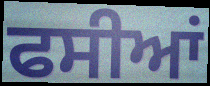
ਫਸੀਆਂ